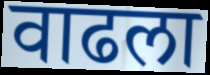
वाढला